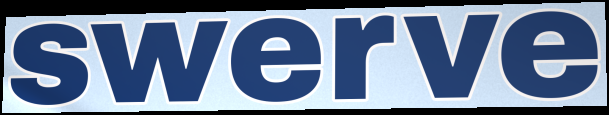
swerve